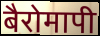
बैरोमापी